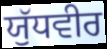
ਯੁੱਧਵੀਰ